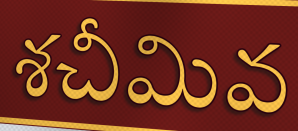
శచీమివ